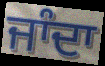
ਜਾੰਦਾ